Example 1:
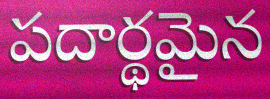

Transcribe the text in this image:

పదార్థమైన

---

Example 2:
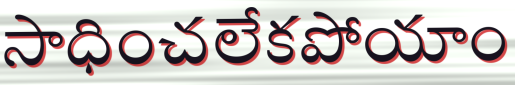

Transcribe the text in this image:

సాధించలేకపోయాం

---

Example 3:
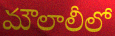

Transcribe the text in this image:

మౌలాలీలో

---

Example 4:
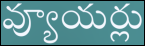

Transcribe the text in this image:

వ్యూయర్లు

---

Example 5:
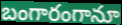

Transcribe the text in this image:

బంగారంగానూ